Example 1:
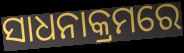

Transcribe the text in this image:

ସାଧନାକ୍ରମରେ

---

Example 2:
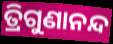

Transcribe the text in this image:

ତ୍ରିଗୁଣାନନ୍ଦ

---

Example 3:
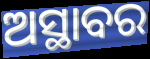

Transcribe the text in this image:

ଅସ୍ଥାବର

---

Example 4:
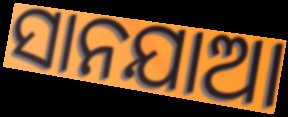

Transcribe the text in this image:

ସାନଯାଆ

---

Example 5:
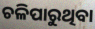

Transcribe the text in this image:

ଚଳିପାରୁଥିବା